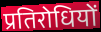
प्रतिरोधियों